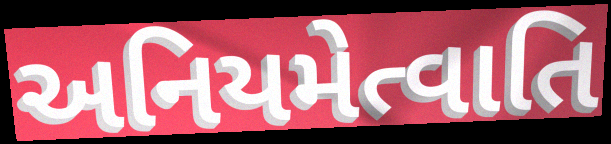
અનિયમેત્વાતિ